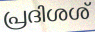
പ്രദിശശ്